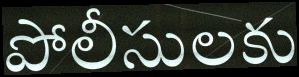
పోలీసులకు